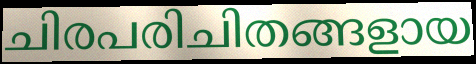
ചിരപരിചിതങ്ങളായ